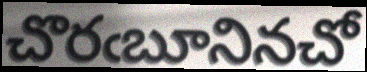
చొరఁబూనినచో